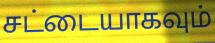
சட்டையாகவும்